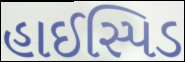
હાઈસ્પિડ